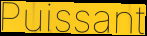
Puissant